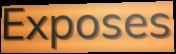
Exposes